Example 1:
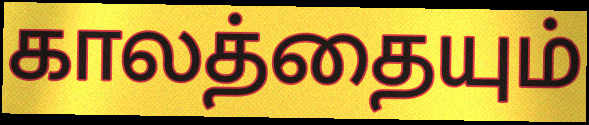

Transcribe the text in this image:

காலத்தையும்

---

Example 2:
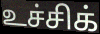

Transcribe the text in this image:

உச்சிக்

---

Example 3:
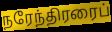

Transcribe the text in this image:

நரேந்திரரைப்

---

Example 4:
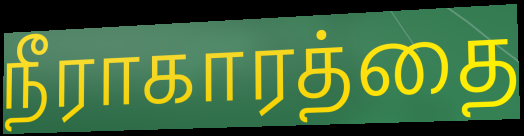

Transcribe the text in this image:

நீராகாரத்தை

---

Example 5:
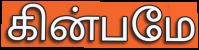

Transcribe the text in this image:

கின்பமே